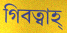
গিবত্বাহ্